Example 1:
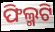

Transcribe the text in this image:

ଫିଲ୍ମଟି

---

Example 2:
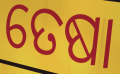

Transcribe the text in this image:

ତେଷା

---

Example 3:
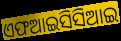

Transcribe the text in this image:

ଏଫଆଇସିସିଆଇ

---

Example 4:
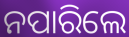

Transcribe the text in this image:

ନପାରିଲେ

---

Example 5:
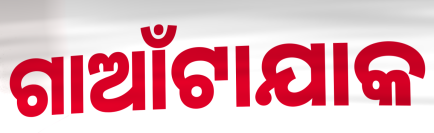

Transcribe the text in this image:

ଗାଆଁଟାଯାକ